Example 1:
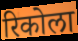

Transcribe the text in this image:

रिकोला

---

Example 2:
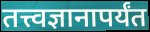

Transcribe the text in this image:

तत्त्वज्ञानापर्यंत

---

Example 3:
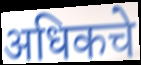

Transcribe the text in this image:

अधिकचे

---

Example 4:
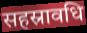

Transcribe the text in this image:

सहस्रावधि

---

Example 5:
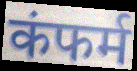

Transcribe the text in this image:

कंफर्म